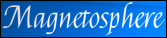
Magnetosphere